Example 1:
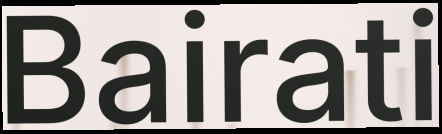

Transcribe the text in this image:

Bairati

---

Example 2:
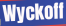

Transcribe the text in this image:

Wyckoff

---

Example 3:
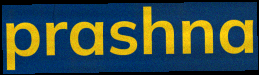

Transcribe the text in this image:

prashna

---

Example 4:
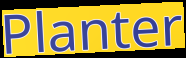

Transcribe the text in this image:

Planter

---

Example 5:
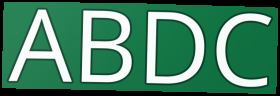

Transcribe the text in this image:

ABDC